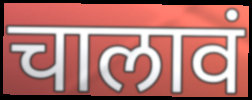
चालावं